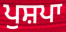
ਪੁਸ਼ਪਾ